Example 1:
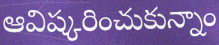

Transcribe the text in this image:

ఆవిష్కరించుకున్నాం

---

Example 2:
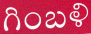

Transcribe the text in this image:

గింబళి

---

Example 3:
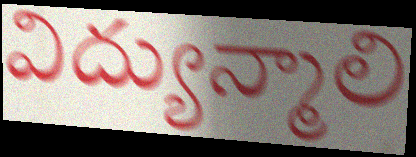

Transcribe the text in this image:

విద్యున్మాలి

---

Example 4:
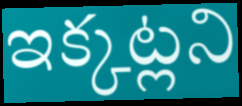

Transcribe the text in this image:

ఇక్కట్లని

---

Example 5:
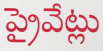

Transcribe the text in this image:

ప్రైవేట్లు